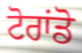
ਟੋਰਾਂਡੋ